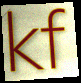
kf